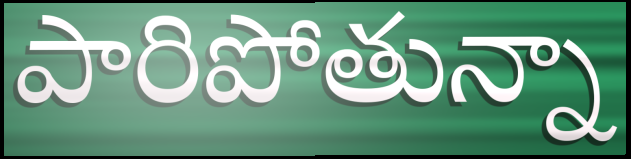
పారిపోతున్నా